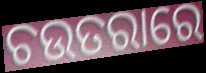
ଚଉତରାରେ